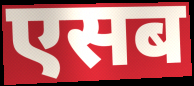
एसब